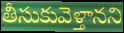
తీసుకువెళ్తానని